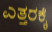
ಎತ್ತರಕ್ಕೆ